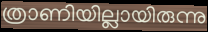
ത്രാണിയില്ലായിരുന്നു